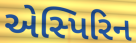
એસ્પિરિન